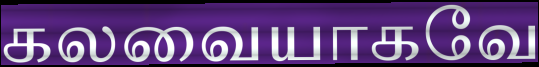
கலவையாகவே